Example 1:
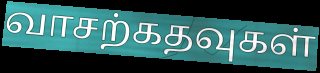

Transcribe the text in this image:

வாசற்கதவுகள்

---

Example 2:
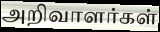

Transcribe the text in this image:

அறிவாளர்கள்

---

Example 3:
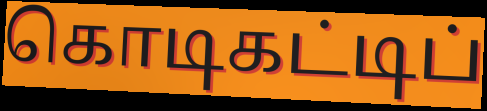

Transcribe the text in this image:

கொடிகட்டிப்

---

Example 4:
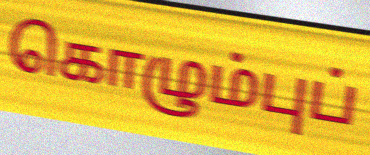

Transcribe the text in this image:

கொழும்புப்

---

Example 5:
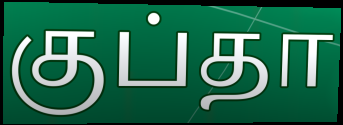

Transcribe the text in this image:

குப்தா